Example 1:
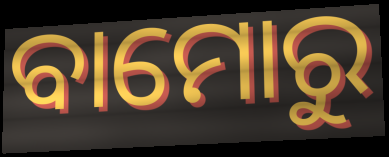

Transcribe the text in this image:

ବାମୋରୁ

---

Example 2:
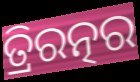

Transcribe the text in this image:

ତ୍ରିରତ୍ନର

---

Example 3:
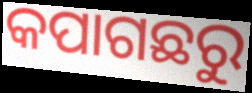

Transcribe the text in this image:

କପାଗଛରୁ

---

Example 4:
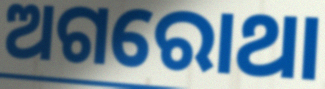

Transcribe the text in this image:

ଅଗରୋଥା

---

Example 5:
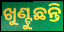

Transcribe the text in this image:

ଖୁଣ୍ଟୁଛନ୍ତି